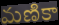
మణికా